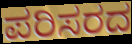
ಪರಿಸರದ